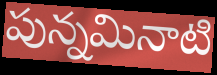
పున్నమినాటి